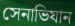
সেনাভিযান